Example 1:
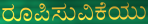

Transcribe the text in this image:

ರೂಪಿಸುವಿಕೆಯು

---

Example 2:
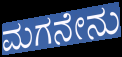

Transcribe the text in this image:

ಮಗನೇನು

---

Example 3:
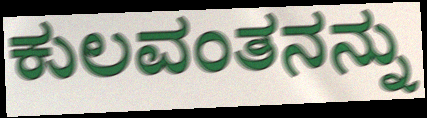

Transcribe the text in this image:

ಕುಲವಂತನನ್ನು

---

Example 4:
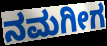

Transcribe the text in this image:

ನಮಗೀಗ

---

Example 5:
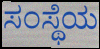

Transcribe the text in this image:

ಸಂಸ್ಥೆಯ